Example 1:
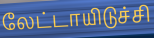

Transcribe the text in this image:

லேட்டாயிடுச்சி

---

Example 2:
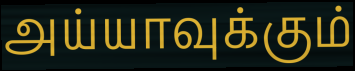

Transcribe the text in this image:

அய்யாவுக்கும்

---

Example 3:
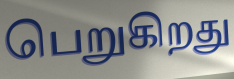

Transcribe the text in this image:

பெறுகிறது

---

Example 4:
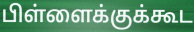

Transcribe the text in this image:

பிள்ளைக்குக்கூட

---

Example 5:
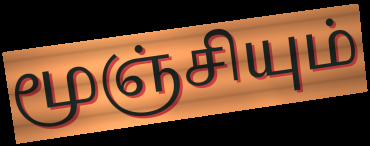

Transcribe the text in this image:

மூஞ்சியும்